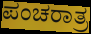
ಪಂಚರಾತ್ರ